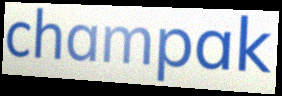
champak